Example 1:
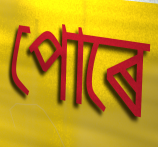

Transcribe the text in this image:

পোৰে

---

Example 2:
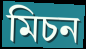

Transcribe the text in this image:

মিচন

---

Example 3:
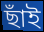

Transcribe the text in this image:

ছাঁই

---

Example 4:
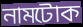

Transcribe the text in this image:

নামটোক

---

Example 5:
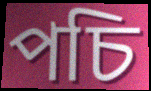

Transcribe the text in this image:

পচি